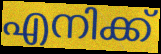
എനിക്ക്